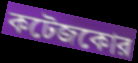
কটেজকোর